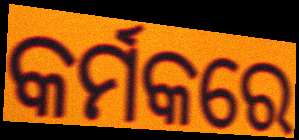
କର୍ମକରେ